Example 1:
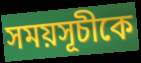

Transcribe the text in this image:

সময়সূচীকে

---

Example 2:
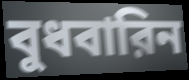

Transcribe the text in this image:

বুধবারিন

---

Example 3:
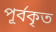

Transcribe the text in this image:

পূর্বকৃত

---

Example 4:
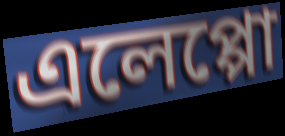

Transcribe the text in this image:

এলেপ্পো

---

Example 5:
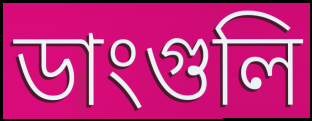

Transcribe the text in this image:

ডাংগুলি